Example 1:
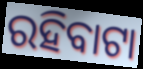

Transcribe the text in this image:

ରହିବାଟା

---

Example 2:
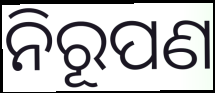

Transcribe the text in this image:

ନିରୂପଣ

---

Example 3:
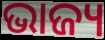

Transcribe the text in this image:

ଭାଜ୍ୟ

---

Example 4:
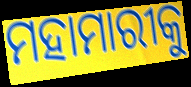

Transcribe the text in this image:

ମହାମାରୀକୁ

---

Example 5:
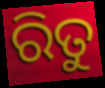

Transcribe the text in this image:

ରିତୁ